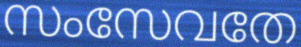
സംസേവതേ